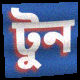
টুন